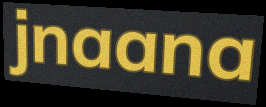
jnaana